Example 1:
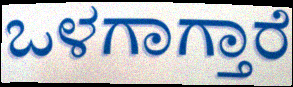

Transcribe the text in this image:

ಒಳಗಾಗ್ತಾರೆ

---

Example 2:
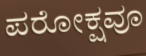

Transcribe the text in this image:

ಪರೋಕ್ಷವೂ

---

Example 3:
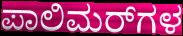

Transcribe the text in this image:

ಪಾಲಿಮರ್‌ಗಳ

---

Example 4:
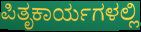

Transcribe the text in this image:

ಪಿತೃಕಾರ್ಯಗಳಲ್ಲಿ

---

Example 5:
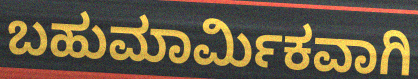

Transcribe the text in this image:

ಬಹುಮಾರ್ಮಿಕವಾಗಿ